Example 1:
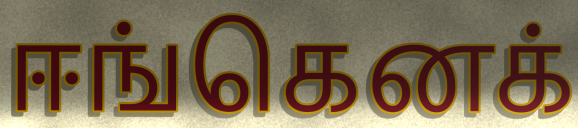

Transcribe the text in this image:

ஈங்கெனக்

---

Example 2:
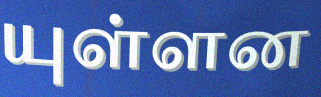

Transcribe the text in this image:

யுள்ளன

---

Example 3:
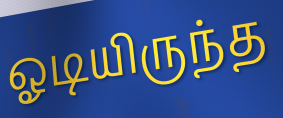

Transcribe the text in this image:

ஓடியிருந்த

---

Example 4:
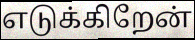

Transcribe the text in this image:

எடுக்கிறேன்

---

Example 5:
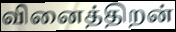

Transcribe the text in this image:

வினைத்திறன்